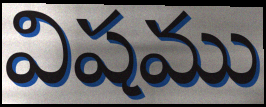
విషము